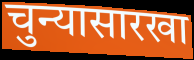
चुन्यासारखा